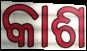
କାଶ